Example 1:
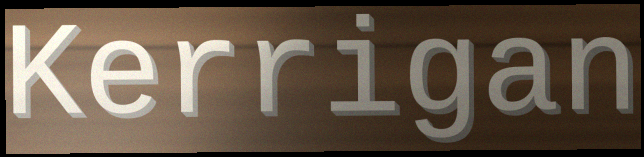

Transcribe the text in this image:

Kerrigan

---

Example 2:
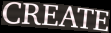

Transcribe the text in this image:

CREATE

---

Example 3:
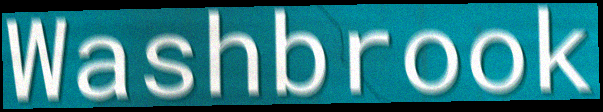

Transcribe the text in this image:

Washbrook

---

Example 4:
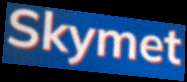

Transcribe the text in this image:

Skymet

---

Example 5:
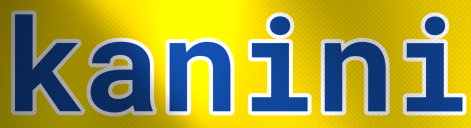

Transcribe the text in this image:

kanini